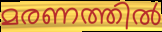
മരണത്തിൽ